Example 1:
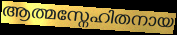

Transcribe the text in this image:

ആത്മസ്നേഹിതനായ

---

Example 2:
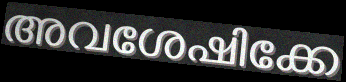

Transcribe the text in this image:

അവശേഷിക്കേ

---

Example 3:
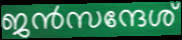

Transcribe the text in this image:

ജൻസന്ദേശ്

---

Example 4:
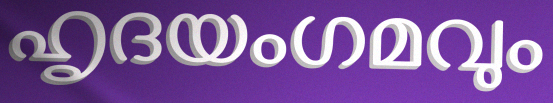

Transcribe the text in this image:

ഹൃദയംഗമവും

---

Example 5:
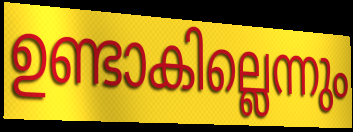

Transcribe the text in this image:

ഉണ്ടാകില്ലെന്നും